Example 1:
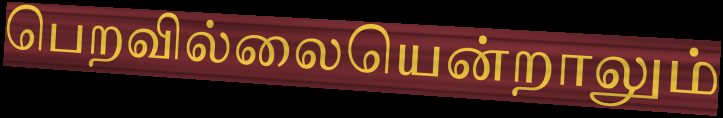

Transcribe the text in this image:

பெறவில்லையென்றாலும்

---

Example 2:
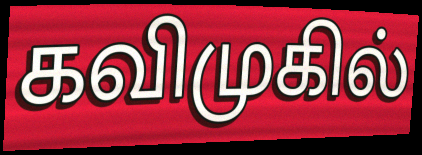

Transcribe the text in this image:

கவிமுகில்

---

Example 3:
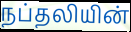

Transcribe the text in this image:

நப்தலியின்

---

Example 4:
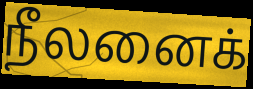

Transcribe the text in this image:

நீலனைக்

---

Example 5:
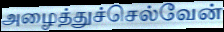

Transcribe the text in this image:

அழைத்துச்செல்வேன்